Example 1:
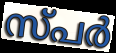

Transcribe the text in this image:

സ്പർ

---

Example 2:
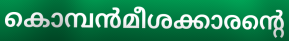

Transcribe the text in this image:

കൊമ്പൻമീശക്കാരന്റെ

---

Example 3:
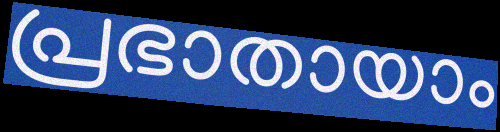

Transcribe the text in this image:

പ്രഭാതായാം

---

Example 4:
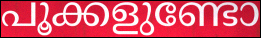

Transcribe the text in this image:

പൂക്കളുണ്ടോ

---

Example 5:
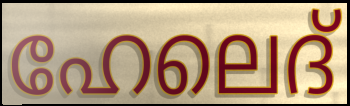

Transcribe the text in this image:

ഹേലെദ്